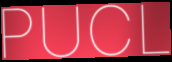
PUCL